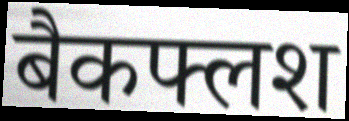
बैकफ्लश